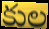
కుల